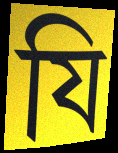
যি